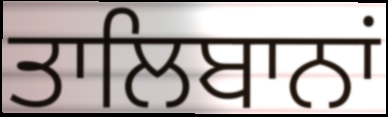
ਤਾਲਿਬਾਨਾਂ